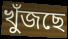
খুঁজছে